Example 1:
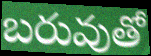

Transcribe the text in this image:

బరువుతో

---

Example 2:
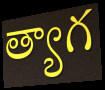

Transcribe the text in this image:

త్యాగ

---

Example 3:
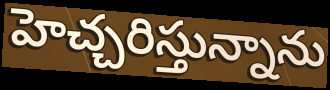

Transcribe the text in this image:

హెచ్చరిస్తున్నాను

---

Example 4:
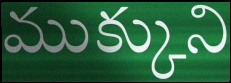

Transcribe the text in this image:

ముక్కుని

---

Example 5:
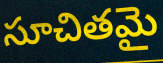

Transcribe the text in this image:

సూచితమై